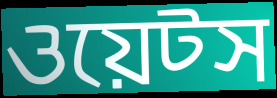
ওয়েট্স